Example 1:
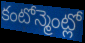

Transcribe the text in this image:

కంటోన్మెంట్లో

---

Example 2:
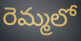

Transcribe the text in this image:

రెమ్మలో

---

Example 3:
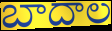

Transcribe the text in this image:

బాదాల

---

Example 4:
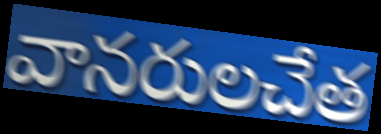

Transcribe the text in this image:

వానరులచేత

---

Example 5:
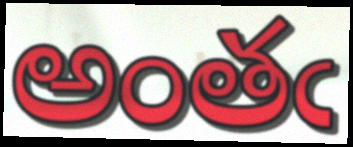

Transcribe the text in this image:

అంతఁ